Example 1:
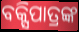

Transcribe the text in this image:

ବକ୍ସିପାତ୍ରଙ୍କ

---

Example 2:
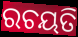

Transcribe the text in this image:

ରଚୟତି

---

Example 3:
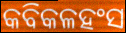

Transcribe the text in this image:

କବିକଳହଂସ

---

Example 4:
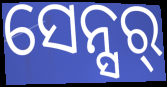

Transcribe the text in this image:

ସେନ୍ସର୍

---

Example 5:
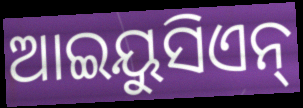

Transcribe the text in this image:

ଆଇୟୁସିଏନ୍